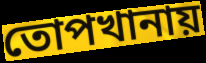
তোপখানায়